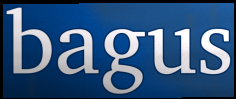
bagus